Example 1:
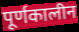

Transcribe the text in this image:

पूर्णकालीन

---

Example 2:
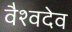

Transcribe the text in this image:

वैश्वदेव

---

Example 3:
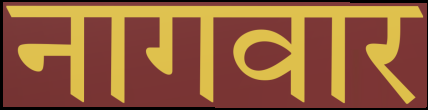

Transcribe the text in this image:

नागवार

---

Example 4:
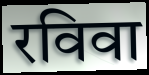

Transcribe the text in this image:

रविवा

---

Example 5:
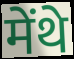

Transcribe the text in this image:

मेंथे